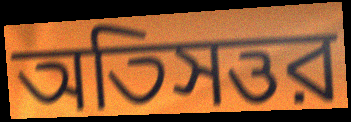
অতিসত্তর